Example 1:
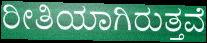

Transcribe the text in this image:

ರೀತಿಯಾಗಿರುತ್ತವೆ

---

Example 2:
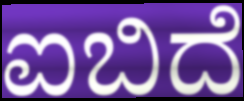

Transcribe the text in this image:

ಐಬಿದೆ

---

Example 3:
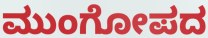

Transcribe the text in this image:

ಮುಂಗೋಪದ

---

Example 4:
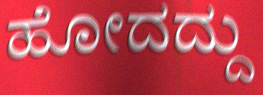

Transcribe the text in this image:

ಹೋದದ್ದು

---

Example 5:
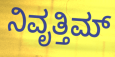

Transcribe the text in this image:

ನಿವೃತ್ತಿಮ್